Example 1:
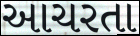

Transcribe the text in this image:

આચરતા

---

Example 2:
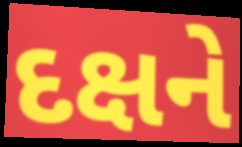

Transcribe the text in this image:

દક્ષને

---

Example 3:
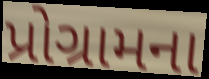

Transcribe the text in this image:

પ્રોગ્રામના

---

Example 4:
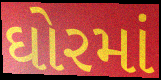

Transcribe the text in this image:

ઘોરમાં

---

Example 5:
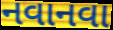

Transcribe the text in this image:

નવાનવા